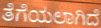
ತೆಗೆಯಲಾಗಿದೆ